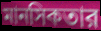
মানসিকতার